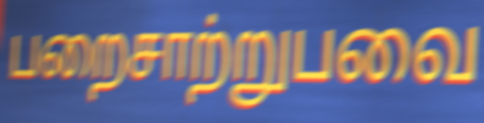
பறைசாற்றுபவை